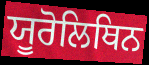
ਯੂਰੋਲਿਥਿਨ